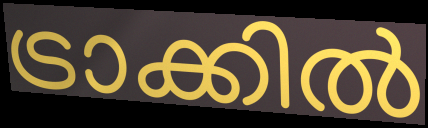
ട്രാക്കിൽ